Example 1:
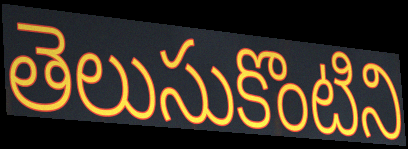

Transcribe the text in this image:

తెలుసుకొంటిని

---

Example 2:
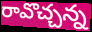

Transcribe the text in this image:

రావొచ్చన్న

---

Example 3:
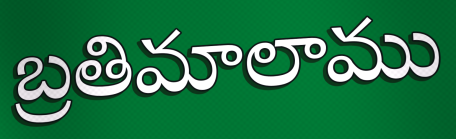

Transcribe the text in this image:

బ్రతిమాలాము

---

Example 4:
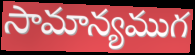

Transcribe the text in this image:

సామాన్యముగ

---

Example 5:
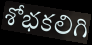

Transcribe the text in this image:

శోభకలిగి